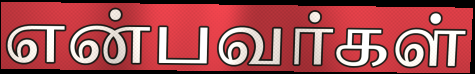
என்பவர்கள்